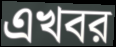
এখবর